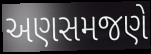
અણસમજણે